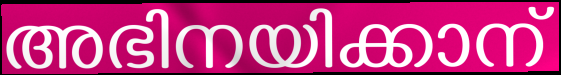
അഭിനയിക്കാന്